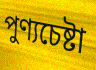
পুণ্যচেষ্টা